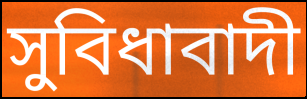
সুবিধাবাদী